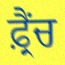
ਫ਼੍ਰੈਂਚ